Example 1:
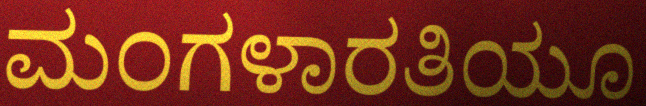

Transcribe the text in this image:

ಮಂಗಳಾರತಿಯೂ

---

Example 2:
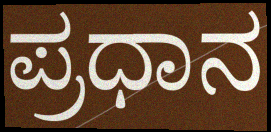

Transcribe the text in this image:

ಪ್ರಧಾನ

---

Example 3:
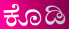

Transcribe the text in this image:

ಕೊಡಿ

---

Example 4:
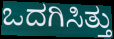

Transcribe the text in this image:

ಒದಗಿಸಿತ್ತು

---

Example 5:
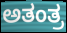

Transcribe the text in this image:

ಅತಂತ್ರ